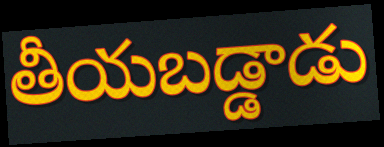
తీయబడ్డాడు